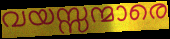
വയസ്സന്മാരെ